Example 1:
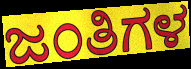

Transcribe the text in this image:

ಜಂತಿಗಳ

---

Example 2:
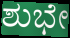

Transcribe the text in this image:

ಶುಭೇ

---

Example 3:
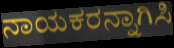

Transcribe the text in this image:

ನಾಯಕರನ್ನಾಗಿಸಿ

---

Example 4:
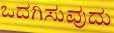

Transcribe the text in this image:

ಒದಗಿಸುವುದು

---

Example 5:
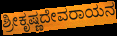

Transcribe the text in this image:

ಶ್ರೀಕೃಷ್ಣದೇವರಾಯನ